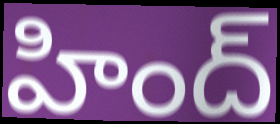
హింద్